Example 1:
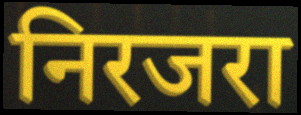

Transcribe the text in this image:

निरजरा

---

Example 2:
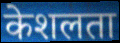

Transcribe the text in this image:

केशलता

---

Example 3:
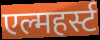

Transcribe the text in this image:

एल्महर्स्ट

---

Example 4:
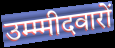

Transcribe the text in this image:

उम्म्मीदवारों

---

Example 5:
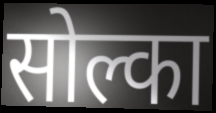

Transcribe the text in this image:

सोल्का